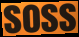
soss